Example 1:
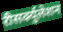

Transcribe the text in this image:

रीसर्क्युलेशन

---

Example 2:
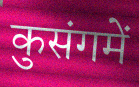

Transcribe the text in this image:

कुसंगमें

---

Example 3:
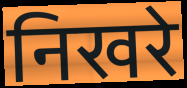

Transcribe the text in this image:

निखरे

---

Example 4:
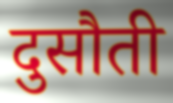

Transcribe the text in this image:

दुसौती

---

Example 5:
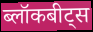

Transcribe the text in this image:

ब्लॉकबीट्स